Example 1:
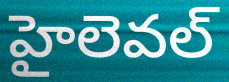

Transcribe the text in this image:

హైలెవల్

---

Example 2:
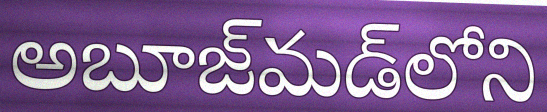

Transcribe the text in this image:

అబూజ్‌మడ్‌లోని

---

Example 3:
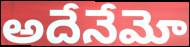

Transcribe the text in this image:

అదేనేమో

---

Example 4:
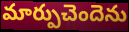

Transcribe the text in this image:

మార్పుచెందెను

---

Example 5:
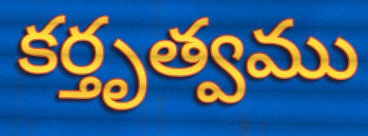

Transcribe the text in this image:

కర్తృత్వము